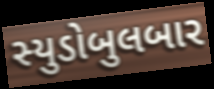
સ્યુડોબુલબાર